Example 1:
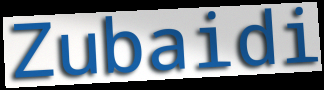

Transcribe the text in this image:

Zubaidi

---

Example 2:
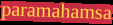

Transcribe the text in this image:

paramahamsa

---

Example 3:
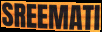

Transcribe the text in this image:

SREEMATI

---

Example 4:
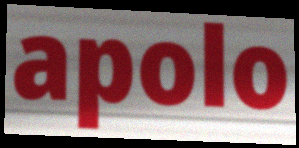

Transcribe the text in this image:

apolo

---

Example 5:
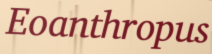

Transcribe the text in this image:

Eoanthropus